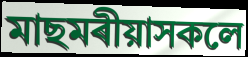
মাছমৰীয়াসকলে